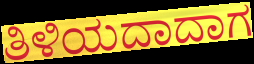
ತಿಳಿಯದಾದಾಗ